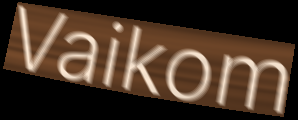
Vaikom